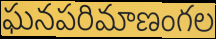
ఘనపరిమాణంగల